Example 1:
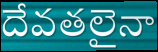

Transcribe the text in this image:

దేవతలైనా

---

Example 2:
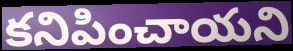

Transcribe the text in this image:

కనిపించాయని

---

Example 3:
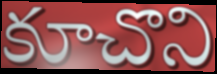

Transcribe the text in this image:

కూచొని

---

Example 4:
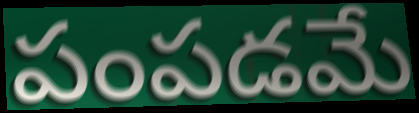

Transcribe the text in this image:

పంపడమే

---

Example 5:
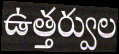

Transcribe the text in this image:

ఉత్తర్వుల